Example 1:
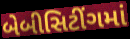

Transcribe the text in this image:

બેબીસિટીંગમાં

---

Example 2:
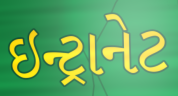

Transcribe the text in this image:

ઇન્ટ્રાનેટ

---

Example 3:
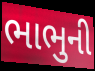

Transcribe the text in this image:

ભાભુની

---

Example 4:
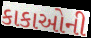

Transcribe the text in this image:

કાકાઓની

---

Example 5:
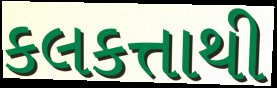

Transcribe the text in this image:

કલકત્તાથી